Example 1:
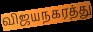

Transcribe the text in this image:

விஜயநகரத்து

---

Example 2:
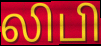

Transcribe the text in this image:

லிபி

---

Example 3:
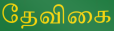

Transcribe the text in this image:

தேவிகை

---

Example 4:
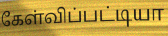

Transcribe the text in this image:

கேள்விப்பட்டியா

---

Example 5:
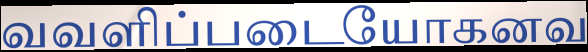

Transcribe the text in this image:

வவளிப்படையோகனவ